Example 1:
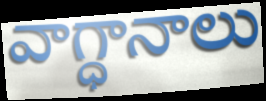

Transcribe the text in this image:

వాగ్ధానాలు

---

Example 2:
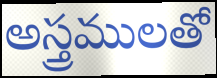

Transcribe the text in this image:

అస్త్రములతో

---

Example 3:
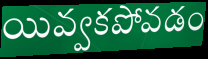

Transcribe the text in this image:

యివ్వకపోవడం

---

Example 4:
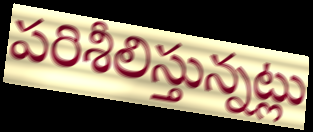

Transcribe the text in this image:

పరిశీలిస్తున్నట్లు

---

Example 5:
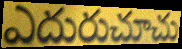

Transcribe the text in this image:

ఎదురుచూచు